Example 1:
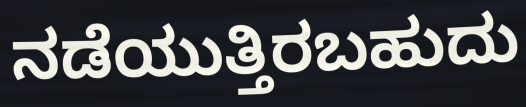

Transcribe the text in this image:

ನಡೆಯುತ್ತಿರಬಹುದು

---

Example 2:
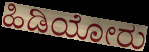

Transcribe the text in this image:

ಹಿಡಿಯೋರು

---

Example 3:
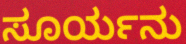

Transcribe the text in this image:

ಸೂರ್ಯನು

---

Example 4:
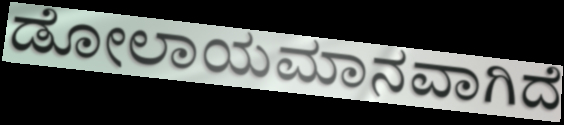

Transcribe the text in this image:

ಡೋಲಾಯಮಾನವಾಗಿದೆ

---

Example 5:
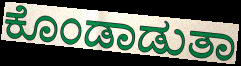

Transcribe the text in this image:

ಕೊಂಡಾಡುತಾ